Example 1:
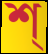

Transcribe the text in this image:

শ্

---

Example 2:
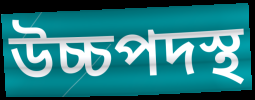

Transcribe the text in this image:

উচ্চপদস্থ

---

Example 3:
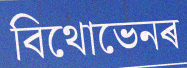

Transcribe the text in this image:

বিথোভেনৰ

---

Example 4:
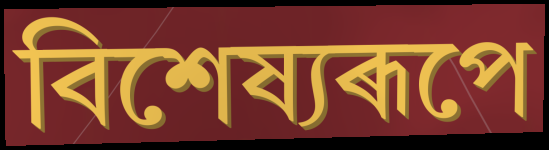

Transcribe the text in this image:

বিশেষ্যৰূপে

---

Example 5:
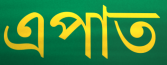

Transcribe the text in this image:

এপাত